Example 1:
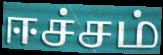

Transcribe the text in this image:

ஈச்சம்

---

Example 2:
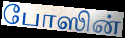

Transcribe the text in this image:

போஸின்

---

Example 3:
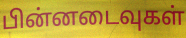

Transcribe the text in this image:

பின்னடைவுகள்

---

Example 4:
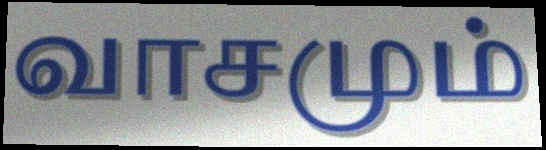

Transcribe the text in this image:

வாசமும்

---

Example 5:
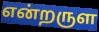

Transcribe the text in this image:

என்றருள